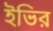
ইভির